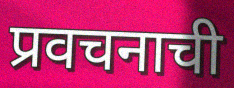
प्रवचनाची